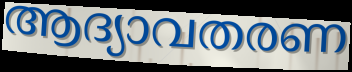
ആദ്യാവതരണ